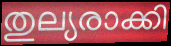
തുല്യരാക്കി